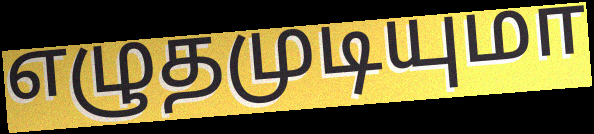
எழுதமுடியுமா